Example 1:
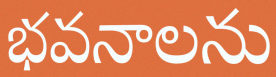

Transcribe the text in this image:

భవనాలను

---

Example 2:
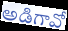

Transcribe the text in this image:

అడిగావో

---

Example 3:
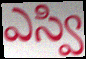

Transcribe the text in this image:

ఎస్వి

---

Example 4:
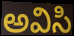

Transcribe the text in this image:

అవిసి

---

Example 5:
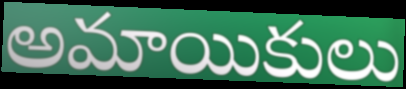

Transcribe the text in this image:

అమాయికులు